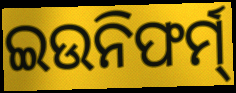
ଇଉନିଫର୍ମ୍